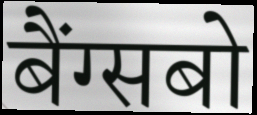
बैंग्सबो